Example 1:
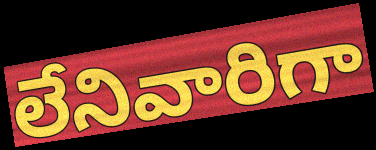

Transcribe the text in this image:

లేనివారిగా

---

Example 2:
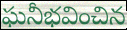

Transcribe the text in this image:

ఘనీభవించిన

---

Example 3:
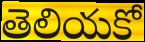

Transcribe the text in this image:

తెలియకో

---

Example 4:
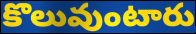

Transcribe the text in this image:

కొలువుంటారు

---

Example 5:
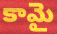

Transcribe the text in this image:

కామై